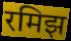
रमिझ